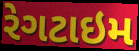
રેગટાઇમ